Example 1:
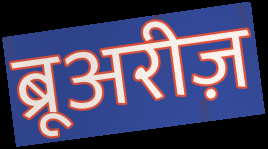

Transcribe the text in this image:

ब्रूअरीज़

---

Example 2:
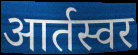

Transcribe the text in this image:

आर्तस्वर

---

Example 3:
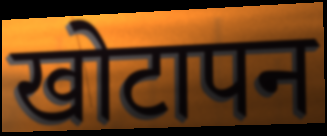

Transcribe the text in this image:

खोटापन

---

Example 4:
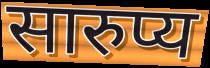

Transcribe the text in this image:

सारुप्य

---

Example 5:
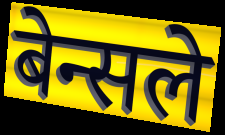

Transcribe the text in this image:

बेन्सले